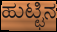
ಹುಟ್ಟಿನ